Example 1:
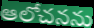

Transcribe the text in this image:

ఆలోచనను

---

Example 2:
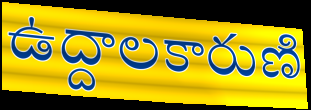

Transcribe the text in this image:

ఉద్దాలకారుణి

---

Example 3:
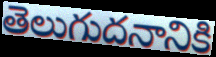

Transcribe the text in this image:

తెలుగుదనానికి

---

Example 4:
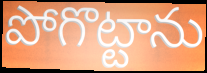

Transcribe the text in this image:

పోగొట్టాను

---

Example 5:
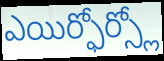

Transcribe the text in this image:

ఎయిర్ఫోర్స్లో